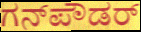
ಗನ್‌ಪೌಡರ್